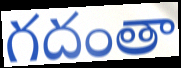
గదంతా